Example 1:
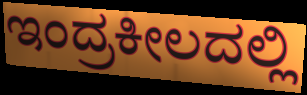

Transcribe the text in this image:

ಇಂದ್ರಕೀಲದಲ್ಲಿ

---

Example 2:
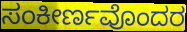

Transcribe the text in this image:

ಸಂಕೀರ್ಣವೊಂದರ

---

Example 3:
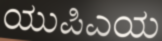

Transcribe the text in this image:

ಯುಪಿಎಯ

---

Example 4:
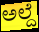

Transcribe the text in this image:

ಅಲ್ದೆ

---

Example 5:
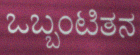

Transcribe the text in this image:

ಒಬ್ಬಂಟಿತನ